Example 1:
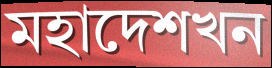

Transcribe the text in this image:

মহাদেশখন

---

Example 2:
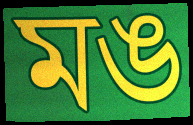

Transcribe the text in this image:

মঙ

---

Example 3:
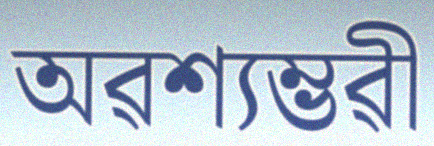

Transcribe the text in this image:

অৱশ্যম্ভৱী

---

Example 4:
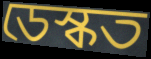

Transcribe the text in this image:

ডেস্কত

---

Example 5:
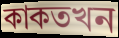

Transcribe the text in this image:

কাকতখন